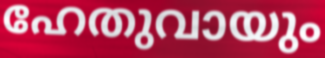
ഹേതുവായും